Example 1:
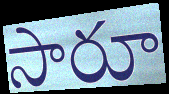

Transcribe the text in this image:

సారూ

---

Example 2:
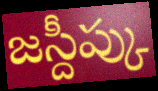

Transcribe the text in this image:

జస్దీప్కు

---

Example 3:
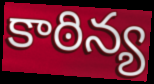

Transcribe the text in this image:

కాఠిన్య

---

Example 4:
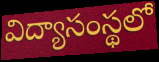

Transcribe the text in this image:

విద్యాసంస్థలో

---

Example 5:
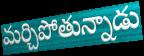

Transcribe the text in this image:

మర్చిపోతున్నాడు